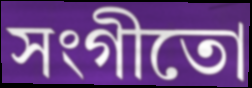
সংগীতো